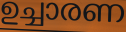
ഉച്ചാരണ